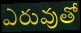
ఎరువుతో